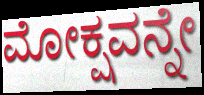
ಮೋಕ್ಷವನ್ನೇ